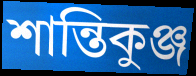
শান্তিকুঞ্জ